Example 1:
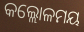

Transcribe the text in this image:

କଲ୍ଲୋଳମୟ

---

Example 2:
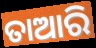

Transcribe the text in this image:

ତାଆରି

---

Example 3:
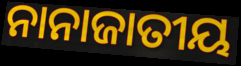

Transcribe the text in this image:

ନାନାଜାତୀୟ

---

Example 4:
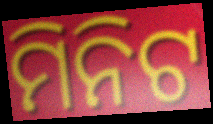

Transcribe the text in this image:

ମିନିଟ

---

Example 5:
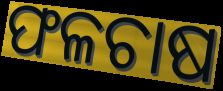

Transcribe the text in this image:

ଫଳଚାଷ